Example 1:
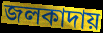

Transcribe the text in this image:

জলকাদায়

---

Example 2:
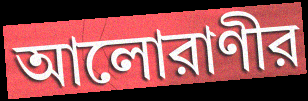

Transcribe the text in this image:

আলোরাণীর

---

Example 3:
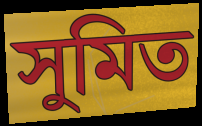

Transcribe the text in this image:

সুমিত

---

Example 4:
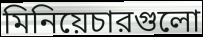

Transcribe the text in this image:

মিনিয়েচারগুলো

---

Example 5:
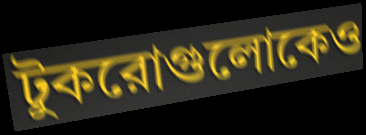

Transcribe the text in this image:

টুকরোগুলোকেও